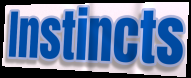
Instincts